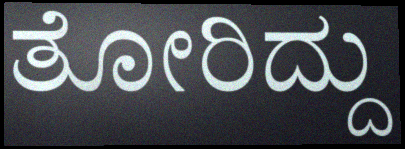
ತೋರಿದ್ದು